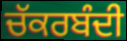
ਚੱਕਰਬੰਦੀ